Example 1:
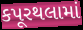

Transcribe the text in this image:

કપૂરથલામાં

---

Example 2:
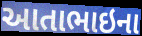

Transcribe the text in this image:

આતાભાઇના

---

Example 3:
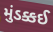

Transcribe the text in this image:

મુંડક્કઈ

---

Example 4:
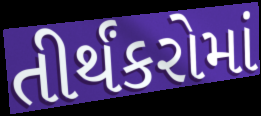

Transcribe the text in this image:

તીર્થંકરોમાં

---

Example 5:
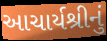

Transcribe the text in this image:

આચાર્યશ્રીનું